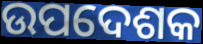
ଉପଦେଶକ